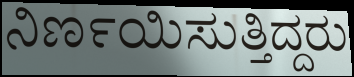
ನಿರ್ಣಯಿಸುತ್ತಿದ್ದರು